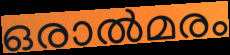
ഒരാൽമരം